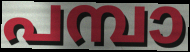
പമ്പാ